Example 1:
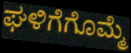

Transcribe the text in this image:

ಘಳಿಗೆಗೊಮ್ಮೆ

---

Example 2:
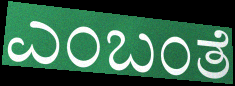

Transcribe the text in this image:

ಎಂಬಂತೆ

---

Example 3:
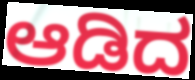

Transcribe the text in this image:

ಆಡಿದ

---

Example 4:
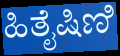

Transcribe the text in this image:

ಹಿತೈಷಿಣಿ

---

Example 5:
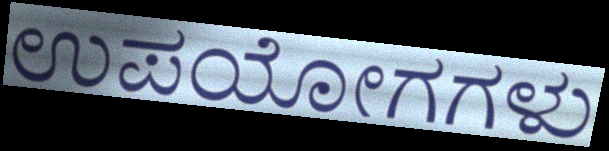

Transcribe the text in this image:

ಉಪಯೋಗಗಳು